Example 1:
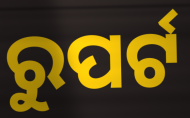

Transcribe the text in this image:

ରୁପର୍ଟ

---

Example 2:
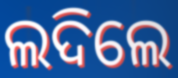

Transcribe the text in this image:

ଲଦିଲେ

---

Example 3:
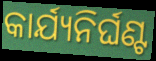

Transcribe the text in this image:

କାର୍ଯ୍ୟନିର୍ଘଣ୍ଟ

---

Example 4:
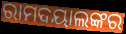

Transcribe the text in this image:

ରାମଦୟାଲଙ୍କର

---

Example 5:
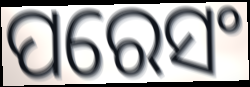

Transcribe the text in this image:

ପରେସଂ